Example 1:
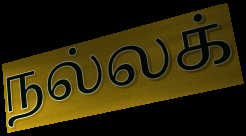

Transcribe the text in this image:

நல்லக்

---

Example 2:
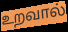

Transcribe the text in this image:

உறவால்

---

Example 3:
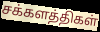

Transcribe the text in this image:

சக்களத்திகள்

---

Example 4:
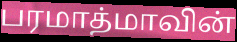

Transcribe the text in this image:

பரமாத்மாவின்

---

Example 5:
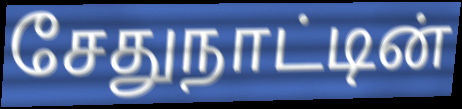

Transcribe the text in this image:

சேதுநாட்டின்